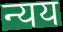
न्यय